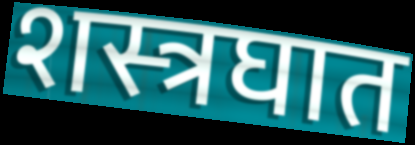
शस्त्रघात